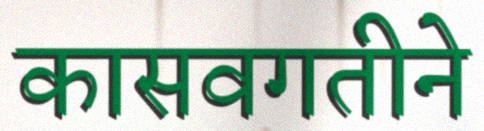
कासवगतीने